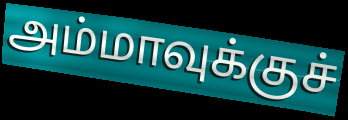
அம்மாவுக்குச்